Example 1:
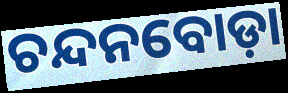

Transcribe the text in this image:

ଚନ୍ଦନବୋଡ଼ା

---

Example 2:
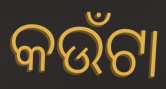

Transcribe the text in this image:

କଉଁଟା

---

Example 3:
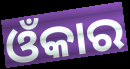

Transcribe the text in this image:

ଓଁକାର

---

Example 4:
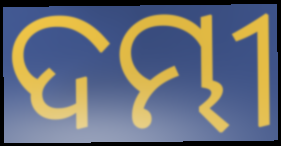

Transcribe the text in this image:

ଦମ୍ଭୀ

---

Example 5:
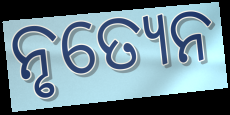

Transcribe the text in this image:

ନୃତ୍ୟେନ